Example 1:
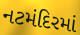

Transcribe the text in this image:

નટમંદિરમાં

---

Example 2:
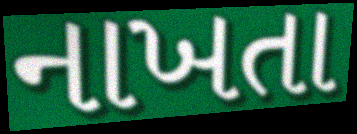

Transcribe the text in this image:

નાખતા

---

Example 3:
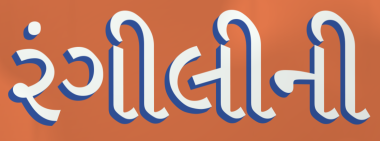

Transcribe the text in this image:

રંગીલીની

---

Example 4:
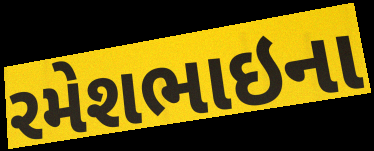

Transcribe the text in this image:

રમેશભાઇના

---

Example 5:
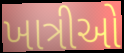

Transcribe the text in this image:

ખાત્રીઓ